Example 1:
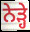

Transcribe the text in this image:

ਨੇੜ੍ਹੇ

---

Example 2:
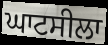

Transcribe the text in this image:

ਘਾਟਸੀਲਾ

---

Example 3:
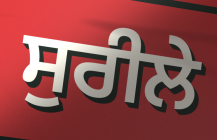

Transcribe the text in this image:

ਸੁਰੀਲੇ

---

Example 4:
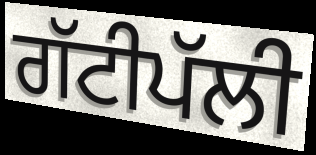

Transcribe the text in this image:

ਗੱਟੀਪੱਲੀ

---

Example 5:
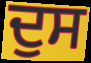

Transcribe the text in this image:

ਦੁਸ